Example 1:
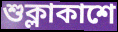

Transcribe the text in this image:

শুক্লাকাশে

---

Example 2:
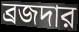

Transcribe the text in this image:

ব্রজদার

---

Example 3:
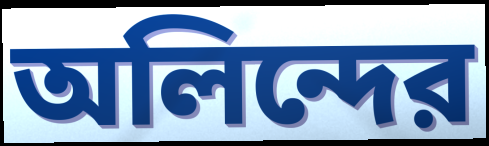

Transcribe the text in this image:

অলিন্দের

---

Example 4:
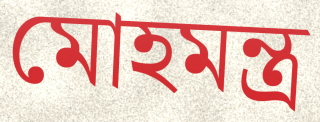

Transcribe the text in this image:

মোহমন্ত্র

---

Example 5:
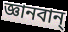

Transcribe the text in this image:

জ্ঞানবান্